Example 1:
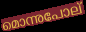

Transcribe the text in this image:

മൊന്നുപോല്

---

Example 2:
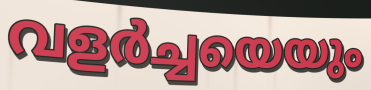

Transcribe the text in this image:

വളർച്ചയെയും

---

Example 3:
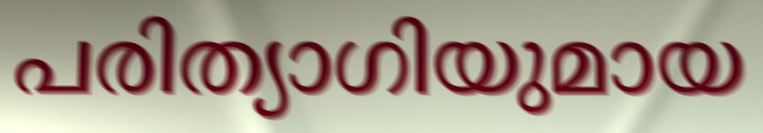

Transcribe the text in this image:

പരിത്യാഗിയുമായ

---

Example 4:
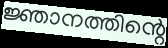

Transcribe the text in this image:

ജ്ഞാനത്തിന്റെ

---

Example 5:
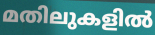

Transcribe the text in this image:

മതിലുകളിൽ